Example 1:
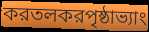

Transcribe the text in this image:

করতলকরপৃষ্ঠাভ্যাং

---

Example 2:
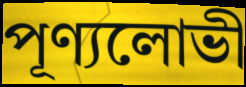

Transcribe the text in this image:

পূণ্যলোভী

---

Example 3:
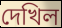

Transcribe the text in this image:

দেখিল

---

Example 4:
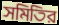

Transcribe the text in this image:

সমিতির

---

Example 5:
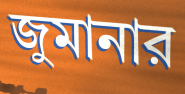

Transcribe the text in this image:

জুমানার